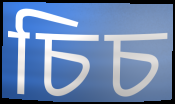
চিচ